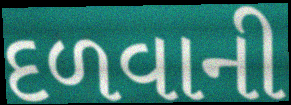
દળવાની